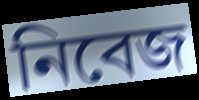
নিবেজ